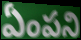
ఏంపని